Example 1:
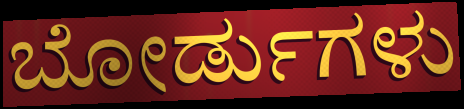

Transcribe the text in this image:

ಬೋರ್ಡುಗಳು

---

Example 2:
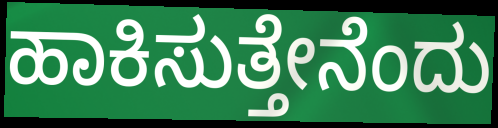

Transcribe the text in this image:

ಹಾಕಿಸುತ್ತೇನೆಂದು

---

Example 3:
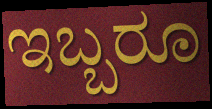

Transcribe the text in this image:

ಇಬ್ಬರೂ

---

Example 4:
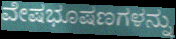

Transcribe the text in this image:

ವೇಷಭೂಷಣಗಳನ್ನು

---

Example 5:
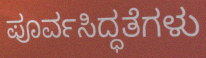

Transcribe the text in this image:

ಪೂರ್ವಸಿದ್ಧತೆಗಳು